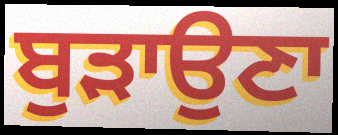
ਬੁੜਾਉਣਾ